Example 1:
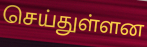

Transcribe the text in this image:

செய்துள்ளன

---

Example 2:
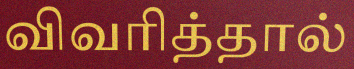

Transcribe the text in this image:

விவரித்தால்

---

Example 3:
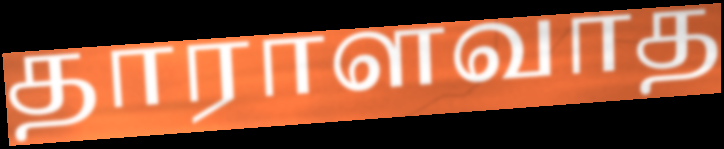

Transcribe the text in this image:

தாராளவாத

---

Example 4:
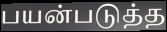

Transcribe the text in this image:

பயன்படுத்த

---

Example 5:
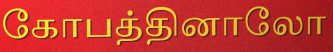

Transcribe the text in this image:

கோபத்தினாலோ